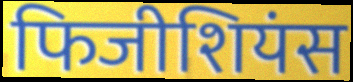
फिजीशियंस